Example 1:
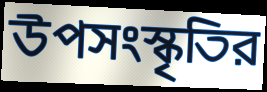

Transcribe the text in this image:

উপসংস্কৃতির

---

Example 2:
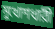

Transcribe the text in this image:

মুখোশধারী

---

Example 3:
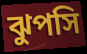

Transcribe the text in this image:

ঝুপসি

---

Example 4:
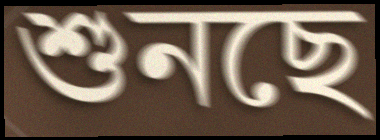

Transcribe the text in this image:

শুনছে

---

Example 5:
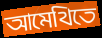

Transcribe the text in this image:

আমেথিতে